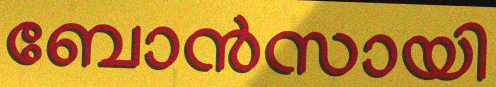
ബോൻസായി